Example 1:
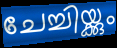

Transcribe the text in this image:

ചേച്ചിയ്ക്കും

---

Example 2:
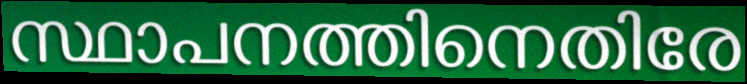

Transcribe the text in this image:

സ്ഥാപനത്തിനെതിരേ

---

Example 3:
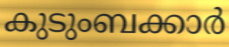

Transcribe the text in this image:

കുടുംബക്കാർ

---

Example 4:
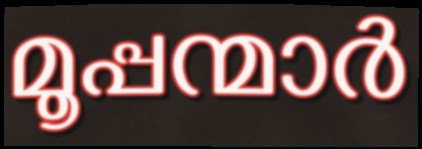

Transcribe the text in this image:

മൂപ്പന്മാർ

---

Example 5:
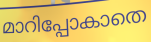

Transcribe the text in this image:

മാറിപ്പോകാതെ